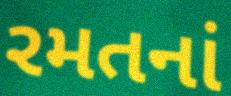
રમતનાં